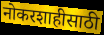
नोकरशाहीसाठी